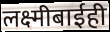
लक्ष्मीबाईही